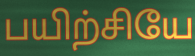
பயிற்சியே